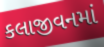
કલાજીવનમાં